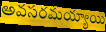
అవసరమయ్యాయి